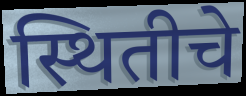
स्थितीचे